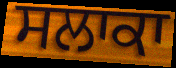
ਸਲਾਕਾ